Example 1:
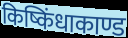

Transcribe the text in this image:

किष्किंधाकाण्ड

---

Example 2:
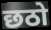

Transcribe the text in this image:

छठो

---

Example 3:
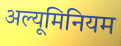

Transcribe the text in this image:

अल्यूमिनियम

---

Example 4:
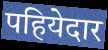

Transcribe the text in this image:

पहियेदार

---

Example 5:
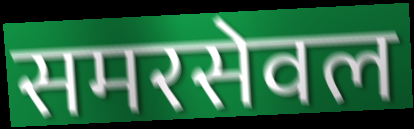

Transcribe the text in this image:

समरसेवल